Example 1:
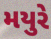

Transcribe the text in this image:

મયુરે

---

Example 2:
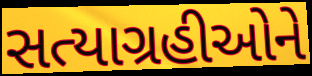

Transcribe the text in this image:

સત્યાગ્રહીઓને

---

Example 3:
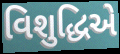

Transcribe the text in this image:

વિશુદ્ધિએ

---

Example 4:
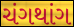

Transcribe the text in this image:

ચંગથાંગ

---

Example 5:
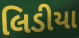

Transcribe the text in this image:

લિડીયા